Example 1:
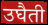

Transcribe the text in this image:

उघैती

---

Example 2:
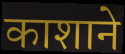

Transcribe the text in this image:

काशाने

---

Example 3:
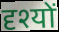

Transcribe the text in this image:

दृश्यों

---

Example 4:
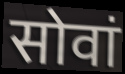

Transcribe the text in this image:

सोवां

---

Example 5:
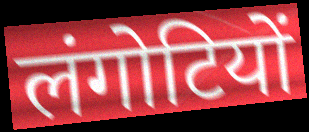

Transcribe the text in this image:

लंगोटियों